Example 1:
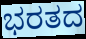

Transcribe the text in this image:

ಭರತದ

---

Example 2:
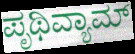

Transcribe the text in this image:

ಪೃಥಿವ್ಯಾಮ್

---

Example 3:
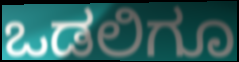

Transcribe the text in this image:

ಒಡಲಿಗೂ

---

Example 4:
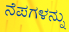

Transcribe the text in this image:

ನೆಪಗಳನ್ನು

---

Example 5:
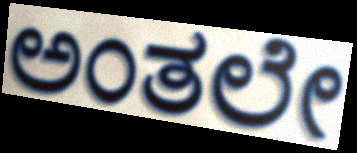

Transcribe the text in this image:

ಅಂತಲೇ